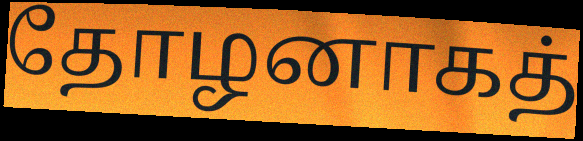
தோழனாகத்